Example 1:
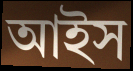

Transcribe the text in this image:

আইস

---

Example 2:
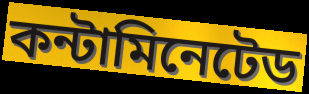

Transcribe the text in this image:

কন্টামিনেটেড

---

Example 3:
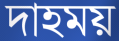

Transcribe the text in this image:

দাহময়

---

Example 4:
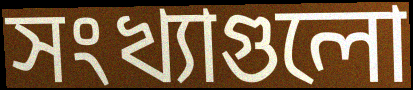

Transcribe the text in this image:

সংখ্যাগুলো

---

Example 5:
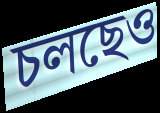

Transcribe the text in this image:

চলছেও